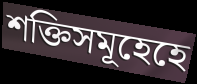
শক্তিসমূহেহে